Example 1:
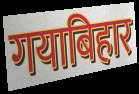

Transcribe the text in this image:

गयाबिहार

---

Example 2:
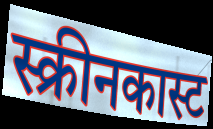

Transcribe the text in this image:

स्क्रीनकास्ट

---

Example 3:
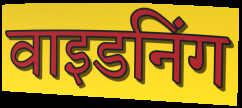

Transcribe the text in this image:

वाइडनिंग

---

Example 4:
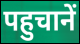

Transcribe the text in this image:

पहुचानें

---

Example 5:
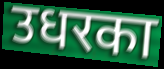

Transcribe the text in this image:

उधरका